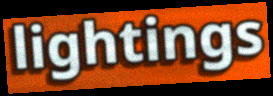
lightings